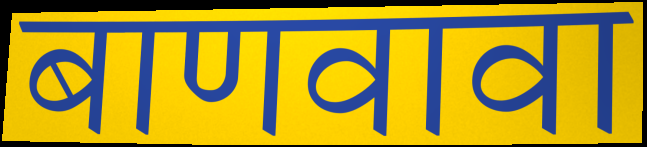
बाणवावा